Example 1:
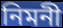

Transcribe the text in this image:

নিমনী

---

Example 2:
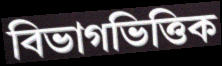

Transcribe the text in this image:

বিভাগভিত্তিক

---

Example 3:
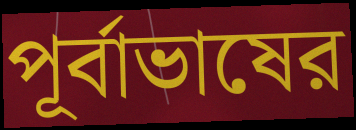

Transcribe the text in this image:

পূর্বাভাষের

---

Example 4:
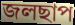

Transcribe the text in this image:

জলছাপ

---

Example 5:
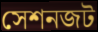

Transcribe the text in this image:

সেশনজট